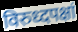
विरुध्दपक्षां